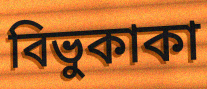
বিভুকাকা